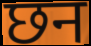
छन